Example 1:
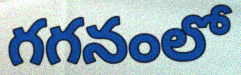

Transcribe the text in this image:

గగనంలో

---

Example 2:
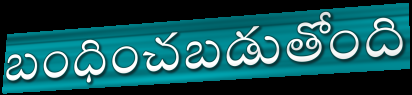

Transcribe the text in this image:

బంధించబడుతోంది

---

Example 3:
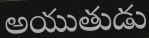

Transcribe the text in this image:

అయుతుడు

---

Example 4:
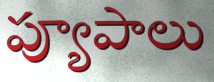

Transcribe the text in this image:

ప్యూపాలు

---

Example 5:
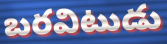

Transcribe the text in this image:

బరవిటుడు